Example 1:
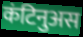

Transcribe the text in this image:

कंटिनुअस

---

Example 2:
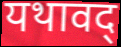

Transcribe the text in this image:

यथावद्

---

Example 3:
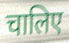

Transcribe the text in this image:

चालिए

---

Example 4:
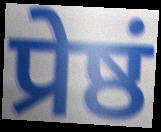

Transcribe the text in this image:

प्रेष्ठं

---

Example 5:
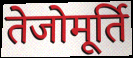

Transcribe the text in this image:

तेजोमूर्ति